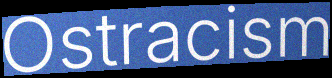
Ostracism